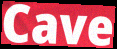
Cave